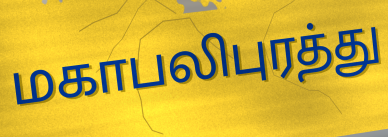
மகாபலிபுரத்து